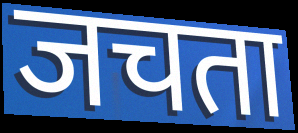
जचता